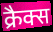
क्रैक्स